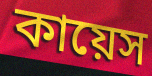
কায়েস